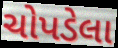
ચોપડેલા